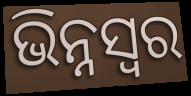
ଭିନ୍ନସ୍ବର